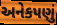
અનેકપણું